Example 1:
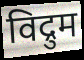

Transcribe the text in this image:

विद्रुम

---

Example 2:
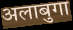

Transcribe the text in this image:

अलाबुगा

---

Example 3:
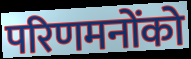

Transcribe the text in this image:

परिणमनोंको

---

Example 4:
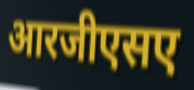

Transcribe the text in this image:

आरजीएसए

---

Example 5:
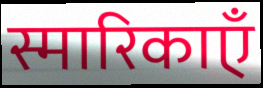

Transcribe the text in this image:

स्मारिकाएँ